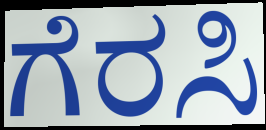
ಗೆರಸಿ